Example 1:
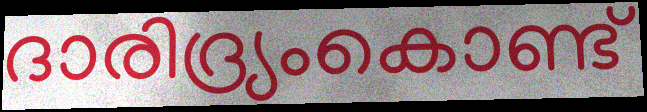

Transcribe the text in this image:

ദാരിദ്ര്യംകൊണ്ട്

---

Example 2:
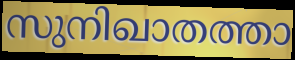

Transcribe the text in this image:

സുനിഖാതത്താ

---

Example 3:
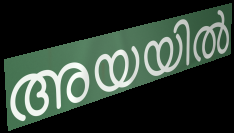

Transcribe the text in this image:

അയയിൽ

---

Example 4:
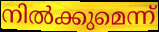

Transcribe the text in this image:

നിൽക്കുമെന്ന്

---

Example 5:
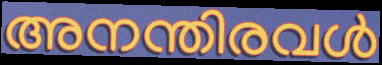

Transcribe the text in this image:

അനന്തിരവൾ